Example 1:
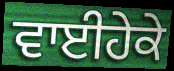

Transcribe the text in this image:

ਵਾਈਹੇਕੇ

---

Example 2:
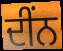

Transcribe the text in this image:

ਦੀਂਨ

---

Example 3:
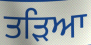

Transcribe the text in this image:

ਤੜਿਆ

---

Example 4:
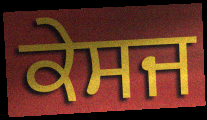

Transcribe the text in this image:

ਕੇਸਜ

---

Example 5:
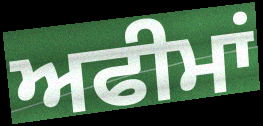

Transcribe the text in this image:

ਅਫੀਮਾਂ